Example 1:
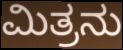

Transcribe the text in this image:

ಮಿತ್ರನು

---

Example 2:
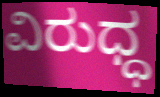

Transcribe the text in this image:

ವಿರುಧ್ಧ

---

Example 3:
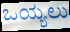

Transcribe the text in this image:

ಒಯ್ಯಲು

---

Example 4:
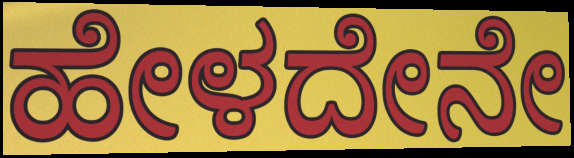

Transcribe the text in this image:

ಹೇಳದೇನೇ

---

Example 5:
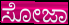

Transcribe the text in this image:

ಸೋಜಾ